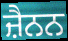
ਜ਼ੈਨਨ